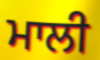
ਮਾਲੀ